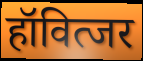
हॉवित्जर